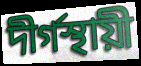
দীর্গস্থায়ী